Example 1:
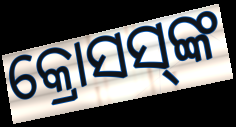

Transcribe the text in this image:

କ୍ରୋସସ୍‌ଙ୍କ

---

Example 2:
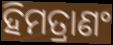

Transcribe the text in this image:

ହିମତ୍ରାଣଂ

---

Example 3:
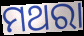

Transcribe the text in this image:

ମଥରା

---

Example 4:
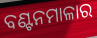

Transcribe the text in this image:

ବଣ୍ଟନମାଳାର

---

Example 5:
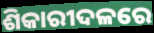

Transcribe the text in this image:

ଶିକାରୀଦଳରେ